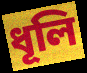
ধূলি